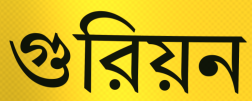
গুরিয়ন